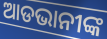
ଆଡଭାନୀଙ୍କ